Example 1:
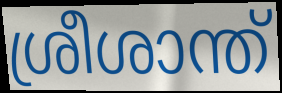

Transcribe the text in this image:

ശ്രീശാന്ത്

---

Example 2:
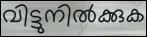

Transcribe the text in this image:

വിട്ടുനിൽക്കുക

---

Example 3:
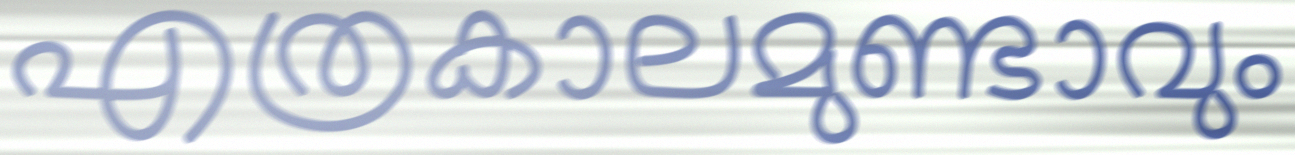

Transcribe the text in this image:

എത്രകാലമുണ്ടാവും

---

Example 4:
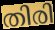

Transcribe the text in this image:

തിരി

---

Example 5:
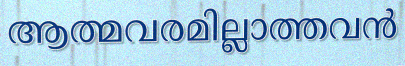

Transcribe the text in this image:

ആത്മവരമില്ലാത്തവൻ